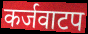
कर्जवाटप